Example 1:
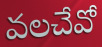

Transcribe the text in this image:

వలచేవో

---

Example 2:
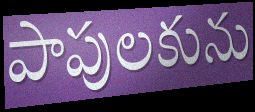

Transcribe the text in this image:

పాపులకును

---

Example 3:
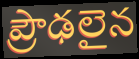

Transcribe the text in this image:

ప్రౌఢలైన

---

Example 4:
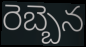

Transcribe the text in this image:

రెబ్బెన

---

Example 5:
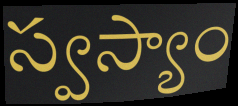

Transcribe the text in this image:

స్వస్యాం